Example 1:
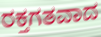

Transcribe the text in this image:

ರಕ್ತಗತವಾದ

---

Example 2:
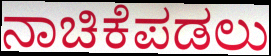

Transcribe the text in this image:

ನಾಚಿಕೆಪಡಲು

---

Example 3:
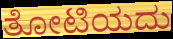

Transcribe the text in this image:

ತೋಟಿಯದು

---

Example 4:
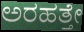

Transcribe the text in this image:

ಅರಹತ್ತೇ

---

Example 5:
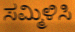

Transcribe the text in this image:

ಸಮ್ಮಿಳಿಸಿ